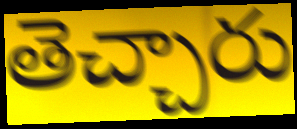
తెచ్చారు